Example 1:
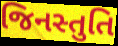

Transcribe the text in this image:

જિનસ્તુતિ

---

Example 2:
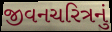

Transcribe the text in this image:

જીવનચરિત્રનું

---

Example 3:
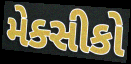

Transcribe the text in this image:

મેક્સીકો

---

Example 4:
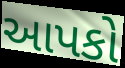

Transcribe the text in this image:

આપકો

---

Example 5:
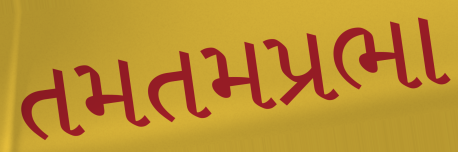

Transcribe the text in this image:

તમતમપ્રભા